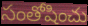
సంతోషించు